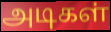
அடிகள்